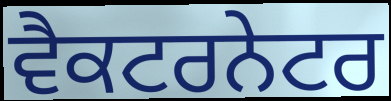
ਵੈਕਟਰਨੇਟਰ